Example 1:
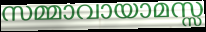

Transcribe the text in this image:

സമ്മാവായാമസ്സ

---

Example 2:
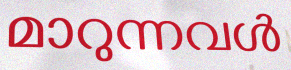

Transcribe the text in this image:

മാറുന്നവൾ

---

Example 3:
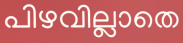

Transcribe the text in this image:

പിഴവില്ലാതെ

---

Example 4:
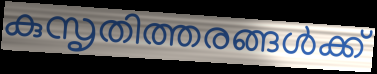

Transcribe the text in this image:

കുസൃതിത്തരങ്ങൾക്ക്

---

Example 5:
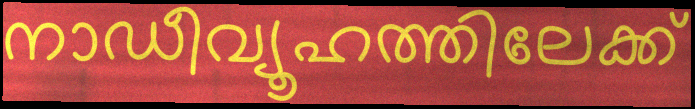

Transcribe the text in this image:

നാഡീവ്യൂഹത്തിലേക്ക്